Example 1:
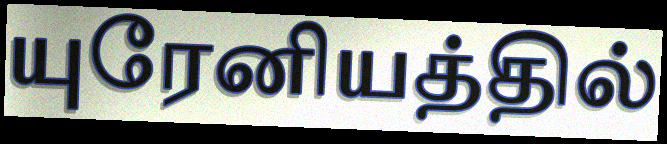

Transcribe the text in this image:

யுரேனியத்தில்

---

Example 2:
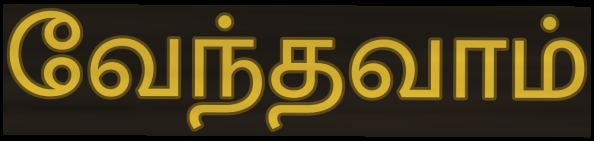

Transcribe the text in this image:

வேந்தவாம்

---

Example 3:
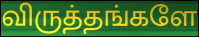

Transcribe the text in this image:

விருத்தங்களே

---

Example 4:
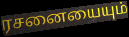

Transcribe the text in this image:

ரசனையையும்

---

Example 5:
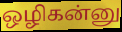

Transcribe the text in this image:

ஒழிகன்னு